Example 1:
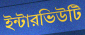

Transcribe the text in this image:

ইন্টারভিউটি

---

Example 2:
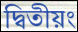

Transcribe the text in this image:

দ্বিতীয়ং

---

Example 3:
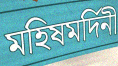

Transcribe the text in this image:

মহিষমর্দিনী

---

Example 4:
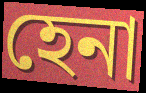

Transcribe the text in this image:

হেনা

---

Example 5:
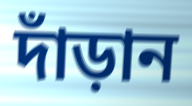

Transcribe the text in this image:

দাঁড়ান